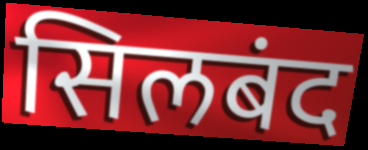
सिलबंद